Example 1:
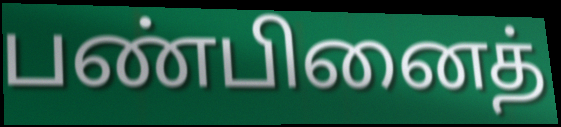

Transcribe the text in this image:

பண்பினைத்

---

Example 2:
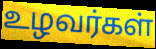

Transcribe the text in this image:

உழவர்கள்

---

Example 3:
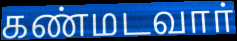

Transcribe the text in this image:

கண்மடவார்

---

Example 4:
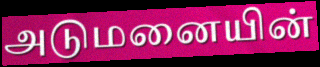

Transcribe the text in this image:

அடுமனையின்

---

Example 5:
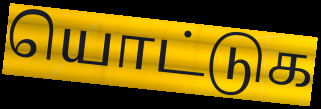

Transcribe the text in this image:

யொட்டுக